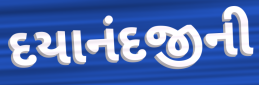
દયાનંદજીની